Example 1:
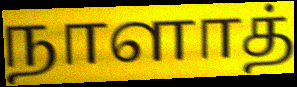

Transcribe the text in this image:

நாளாத்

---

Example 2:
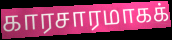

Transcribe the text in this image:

காரசாரமாகக்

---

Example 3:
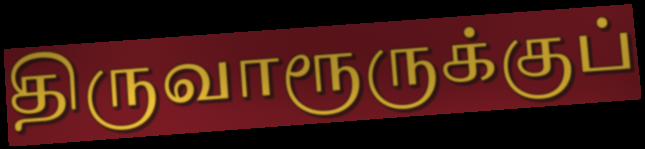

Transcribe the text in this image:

திருவாரூருக்குப்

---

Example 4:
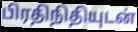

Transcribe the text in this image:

பிரதிநிதியுடன்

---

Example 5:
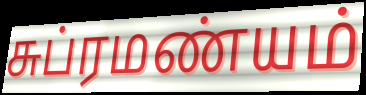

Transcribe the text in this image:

சுப்ரமண்யம்